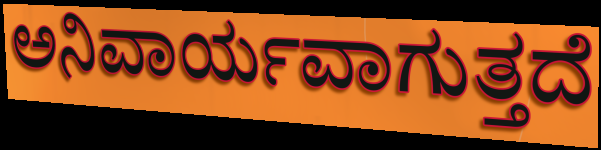
ಅನಿವಾರ್ಯವಾಗುತ್ತದೆ